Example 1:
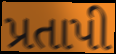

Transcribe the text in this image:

પ્રતાપી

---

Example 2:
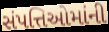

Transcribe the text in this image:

સંપત્તિઓમાંની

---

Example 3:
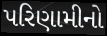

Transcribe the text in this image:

પરિણામીનો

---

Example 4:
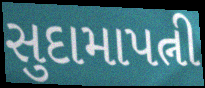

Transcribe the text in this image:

સુદામાપત્ની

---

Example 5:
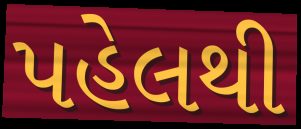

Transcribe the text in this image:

પહેલથી